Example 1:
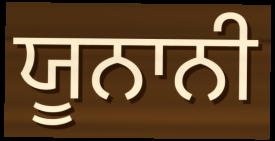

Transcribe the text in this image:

ਯੂਨਾਨੀ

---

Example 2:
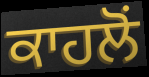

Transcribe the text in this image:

ਕਾਹਲੋਂ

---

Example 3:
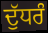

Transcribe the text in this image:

ਦੁੱਧਰੰ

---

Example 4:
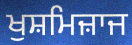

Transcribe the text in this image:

ਖੁਸ਼ਮਿਜ਼ਾਜ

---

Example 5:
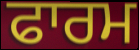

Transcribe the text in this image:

ਫਾਰਮ